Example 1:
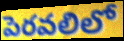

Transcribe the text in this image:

పెరవలిలో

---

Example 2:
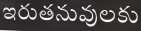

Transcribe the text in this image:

ఇరుతనువులకు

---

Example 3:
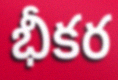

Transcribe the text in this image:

భీకర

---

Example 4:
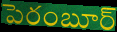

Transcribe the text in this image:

పెరంబూర్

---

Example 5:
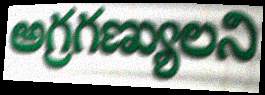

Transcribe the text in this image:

అగ్రగణ్యులని